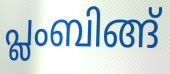
പ്ലംബിങ്ങ്